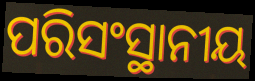
ପରିସଂସ୍ଥାନୀୟ